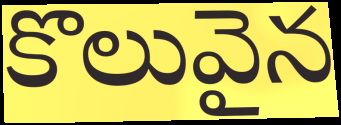
కొలువైన